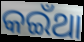
କଇଁଥା